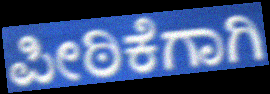
ಪೀಠಿಕೆಗಾಗಿ